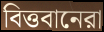
বিত্তবানেরা